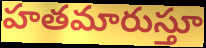
హతమారుస్తూ